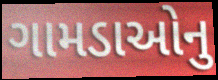
ગામડાઓનુ